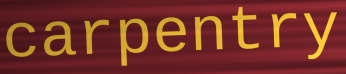
carpentry